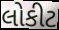
લોકીટ